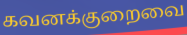
கவனக்குறைவை